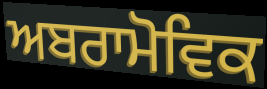
ਅਬਰਾਮੋਵਿਕ